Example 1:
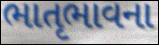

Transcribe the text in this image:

ભાતૃભાવના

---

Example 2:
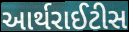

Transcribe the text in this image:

આર્થરાઈટીસ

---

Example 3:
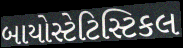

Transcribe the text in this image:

બાયોસ્ટેટિસ્ટિકલ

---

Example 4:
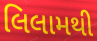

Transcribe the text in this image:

લિલામથી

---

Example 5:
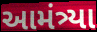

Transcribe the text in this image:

આમંત્ર્યા